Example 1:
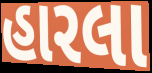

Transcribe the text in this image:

હારલા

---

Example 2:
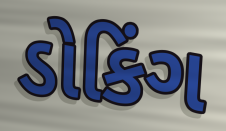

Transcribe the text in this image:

ડોકિંગ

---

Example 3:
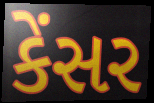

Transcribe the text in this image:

કેંસર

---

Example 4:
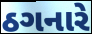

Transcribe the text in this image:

ઠગનારે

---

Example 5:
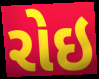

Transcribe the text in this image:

રોઇ